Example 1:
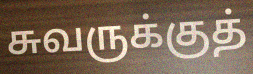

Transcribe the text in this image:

சுவருக்குத்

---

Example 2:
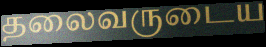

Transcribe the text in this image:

தலைவருடைய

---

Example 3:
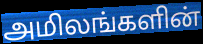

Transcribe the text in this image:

அமிலங்களின்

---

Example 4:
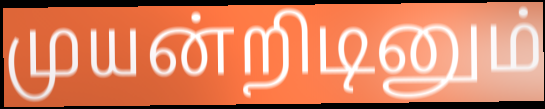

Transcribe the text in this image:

முயன்றிடினும்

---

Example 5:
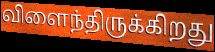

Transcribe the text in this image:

விளைந்திருக்கிறது